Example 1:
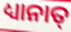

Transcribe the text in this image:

ଧ୍ୟାନାତ୍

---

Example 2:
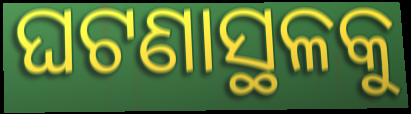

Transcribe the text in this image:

ଘଟଣାସ୍ଥଳକୁ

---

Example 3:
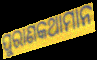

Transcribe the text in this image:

ପୁରାଣକଥାମାନ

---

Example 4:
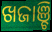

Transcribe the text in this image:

ଖଜାଞ୍ଚି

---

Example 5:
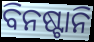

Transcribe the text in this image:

ବିନଷ୍ଟାନି